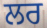
ਲਰ